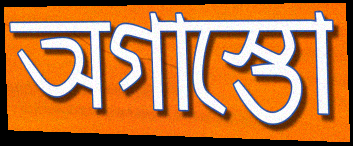
অগাস্তো